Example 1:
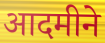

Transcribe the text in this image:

आदमीने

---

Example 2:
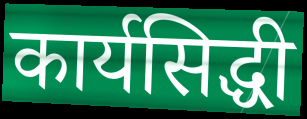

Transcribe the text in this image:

कार्यसिद्धी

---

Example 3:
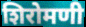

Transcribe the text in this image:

शिरोमणी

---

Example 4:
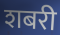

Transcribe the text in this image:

शबरी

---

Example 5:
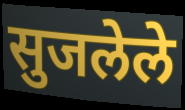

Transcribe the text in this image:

सुजलेले